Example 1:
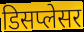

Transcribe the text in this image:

डिसप्लेसर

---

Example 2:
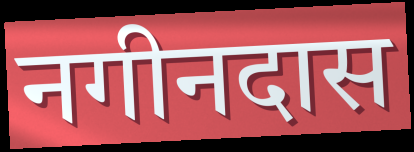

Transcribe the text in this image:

नगीनदास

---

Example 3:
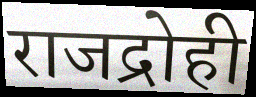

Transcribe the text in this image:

राजद्रोही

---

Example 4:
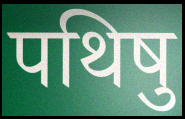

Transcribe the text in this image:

पथिषु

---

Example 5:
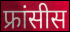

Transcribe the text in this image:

फ्रांसीस